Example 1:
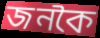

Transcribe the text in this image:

জনকৈ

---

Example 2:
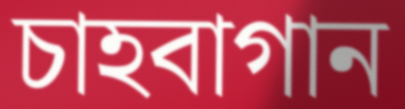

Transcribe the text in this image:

চাহবাগান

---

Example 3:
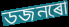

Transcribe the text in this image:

ডজনৰো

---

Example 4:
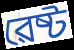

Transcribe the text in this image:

ৱেষ্ট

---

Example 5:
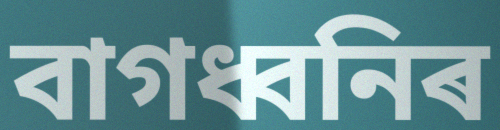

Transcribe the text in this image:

বাগধ্বনিৰ